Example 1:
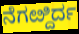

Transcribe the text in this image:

ನೆಗೞ್ದಿರ್ದ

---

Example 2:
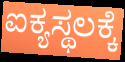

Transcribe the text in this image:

ಐಕ್ಯಸ್ಥಲಕ್ಕೆ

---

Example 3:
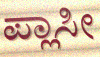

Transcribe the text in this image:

ಪ್ಲಾಸೀ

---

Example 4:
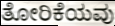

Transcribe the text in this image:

ತೋರಿಕೆಯವು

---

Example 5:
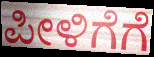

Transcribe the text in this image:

ಪೀಳಿಗೆಗೆ